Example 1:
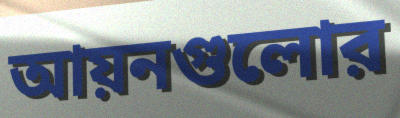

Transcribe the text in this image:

আয়নগুলোর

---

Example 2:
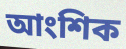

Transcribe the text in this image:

আংশিক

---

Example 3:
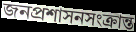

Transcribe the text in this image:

জনপ্রশাসনসংক্রান্ত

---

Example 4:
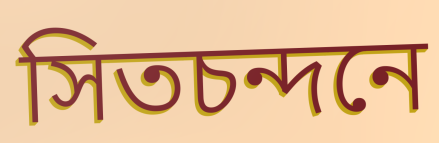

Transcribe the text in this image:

সিতচন্দনে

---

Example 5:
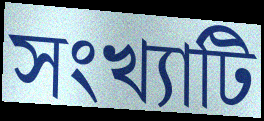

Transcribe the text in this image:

সংখ্যাটি